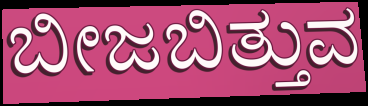
ಬೀಜಬಿತ್ತುವ